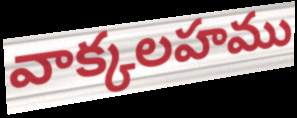
వాక్కలహము